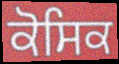
ਕੋਸਿਕ